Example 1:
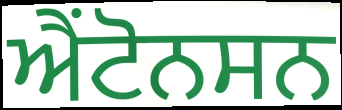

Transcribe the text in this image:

ਐਂਟੋਨਸਨ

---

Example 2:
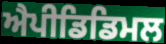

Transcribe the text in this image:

ਐਪੀਡਿਡਿਮਲ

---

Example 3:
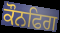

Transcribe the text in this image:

ਕੌਨਫਿਗ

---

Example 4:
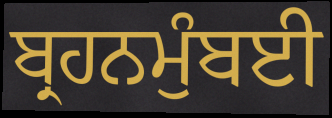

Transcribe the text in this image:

ਬ੍ਰਹਨਮੁੰਬਈ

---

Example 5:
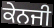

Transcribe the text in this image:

ਕੇਨਜੀ